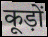
कूड़ों